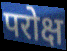
परोक्ष